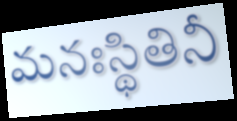
మనఃస్థితినీ